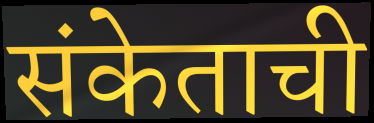
संकेताची